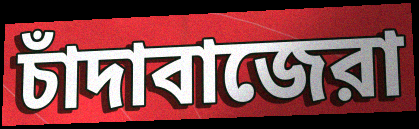
চাঁদাবাজেরা